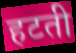
हटती